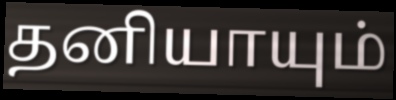
தனியாயும்